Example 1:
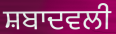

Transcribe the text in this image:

ਸ਼ਬਾਦਵਲੀ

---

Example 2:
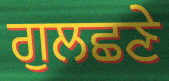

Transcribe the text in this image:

ਗੁਲਛਣੇ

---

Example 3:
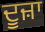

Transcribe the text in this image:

ਦੂਜ਼ਾ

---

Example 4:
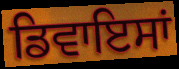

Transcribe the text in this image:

ਡਿਵਾਇਸਾਂ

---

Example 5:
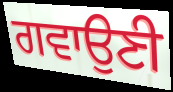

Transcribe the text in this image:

ਗਵਾਉਣੀ